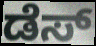
ಡೆಸ್